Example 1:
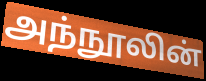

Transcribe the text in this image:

அந்நூலின்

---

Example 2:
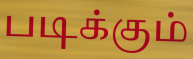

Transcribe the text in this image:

படிக்கும்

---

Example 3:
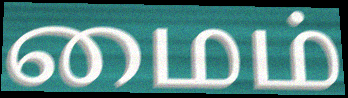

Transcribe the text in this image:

மைம்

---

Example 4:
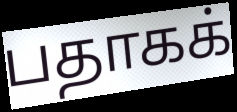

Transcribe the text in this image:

பதாகக்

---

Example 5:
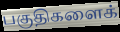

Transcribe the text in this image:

பகுதிகளைக்